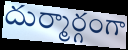
దుర్మార్గంగా